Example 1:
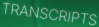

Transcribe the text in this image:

TRANSCRIPTS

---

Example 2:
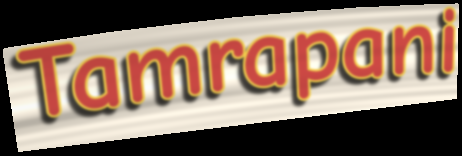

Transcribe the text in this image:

Tamrapani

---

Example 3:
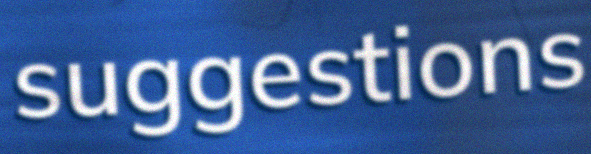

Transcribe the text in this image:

suggestions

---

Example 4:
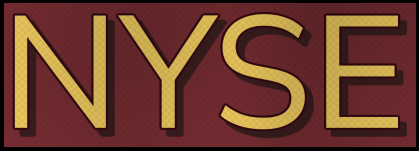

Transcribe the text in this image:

NYSE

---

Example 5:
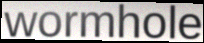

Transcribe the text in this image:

wormhole